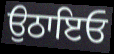
ਉਠਾਇਓ